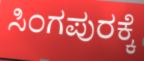
ಸಿಂಗಪುರಕ್ಕೆ